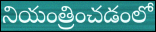
నియంత్రించడంలో